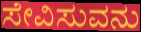
ಸೇವಿಸುವನು